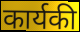
कार्यकी